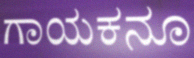
ಗಾಯಕನೂ